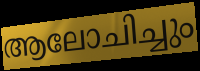
ആലോചിച്ചും